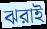
ঝরাই